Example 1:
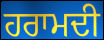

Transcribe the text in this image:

ਹਰਾਮਦੀ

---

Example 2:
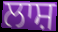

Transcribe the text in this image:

ਲਾਸ਼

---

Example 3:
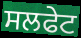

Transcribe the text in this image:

ਸਲਫੇਟ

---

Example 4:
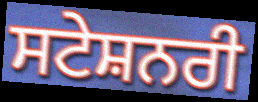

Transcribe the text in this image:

ਸਟੇਸ਼ਨਰੀ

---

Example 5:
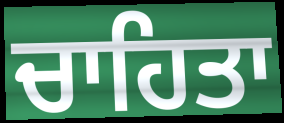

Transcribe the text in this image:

ਚਾਹਿਤਾ